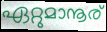
ഏറ്റുമാനൂര്